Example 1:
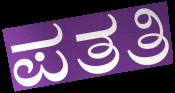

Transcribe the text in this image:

ಪತತಿ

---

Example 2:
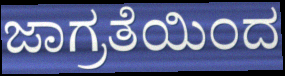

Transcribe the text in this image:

ಜಾಗ್ರತೆಯಿಂದ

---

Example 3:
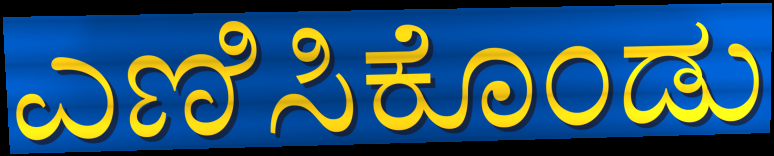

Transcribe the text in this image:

ಎಣಿಸಿಕೊಂಡು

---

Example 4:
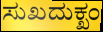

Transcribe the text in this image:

ಸುಖದುಕ್ಖಂ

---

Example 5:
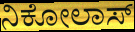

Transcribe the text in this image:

ನಿಕೋಲಾಸ್